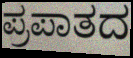
ಪ್ರಪಾತದ